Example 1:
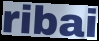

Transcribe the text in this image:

ribai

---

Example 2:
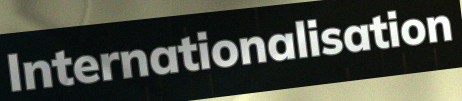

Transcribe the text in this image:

Internationalisation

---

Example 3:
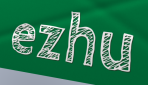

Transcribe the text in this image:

ezhu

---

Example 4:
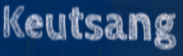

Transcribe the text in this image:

Keutsang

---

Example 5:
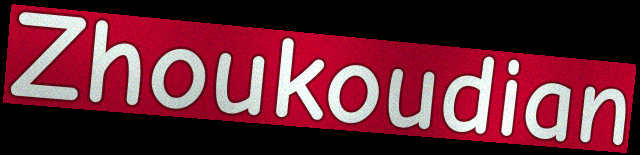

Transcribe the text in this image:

Zhoukoudian